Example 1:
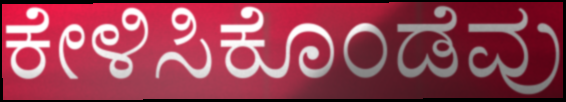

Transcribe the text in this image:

ಕೇಳಿಸಿಕೊಂಡೆವು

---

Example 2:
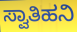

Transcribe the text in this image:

ಸ್ವಾತಿಹನಿ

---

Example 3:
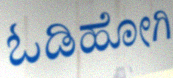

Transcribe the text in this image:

ಓಡಿಹೋಗಿ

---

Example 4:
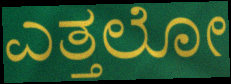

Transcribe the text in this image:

ಎತ್ತಲೋ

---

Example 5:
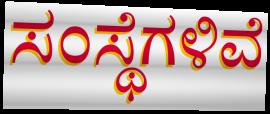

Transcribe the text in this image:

ಸಂಸ್ಥೆಗಳಿವೆ